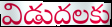
విడుదలకు